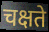
चक्षते